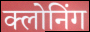
क्लोनिंग